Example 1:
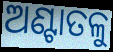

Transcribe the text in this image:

ଅଣ୍ଟାତଳୁ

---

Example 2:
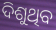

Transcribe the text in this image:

ଦିଶୁଥିବ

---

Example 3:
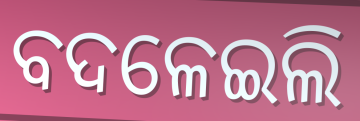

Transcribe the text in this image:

ବଦଳେଇଲି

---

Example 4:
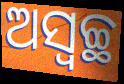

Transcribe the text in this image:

ଅସ୍ଵଚ୍ଛ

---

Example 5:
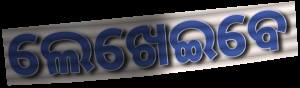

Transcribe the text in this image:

ଲେଖେଇବେ